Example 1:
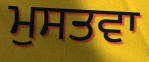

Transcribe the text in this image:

ਮੁਸਤਵਾ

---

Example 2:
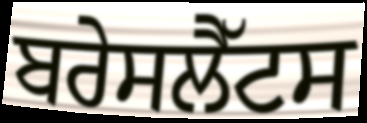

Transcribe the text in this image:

ਬਰੇਸਲੈੱਟਸ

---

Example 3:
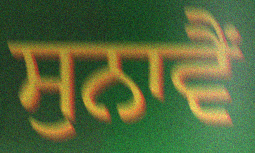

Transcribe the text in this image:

ਸੁਨਾਵੈਂ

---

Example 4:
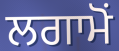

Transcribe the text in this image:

ਲਗਾਮੋਂ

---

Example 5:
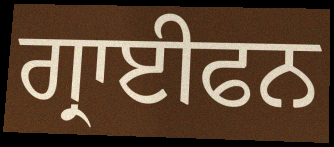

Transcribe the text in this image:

ਗ੍ਰਾਈਫਨ